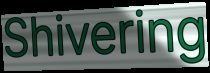
Shivering